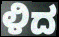
ಳಿದ